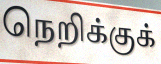
நெறிக்குக்